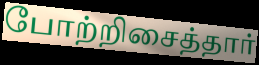
போற்றிசைத்தார்